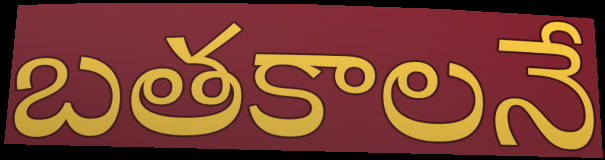
బతకాలనే